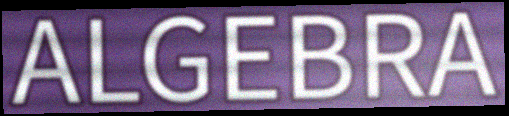
ALGEBRA